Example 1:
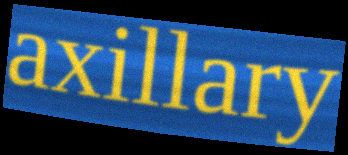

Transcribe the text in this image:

axillary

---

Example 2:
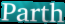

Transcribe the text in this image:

Parth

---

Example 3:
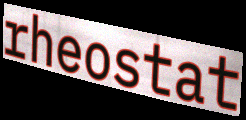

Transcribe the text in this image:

rheostat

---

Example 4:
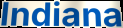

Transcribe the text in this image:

Indiana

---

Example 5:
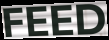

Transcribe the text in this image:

FEED